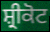
ਸ਼੍ਰੀਕੋਟ